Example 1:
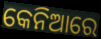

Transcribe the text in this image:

କେନିଆରେ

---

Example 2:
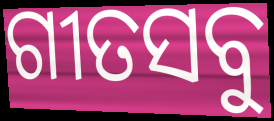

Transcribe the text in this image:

ଗୀତସବୁ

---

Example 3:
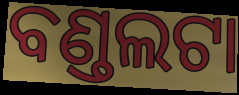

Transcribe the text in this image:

ବଣ୍ଡଲଟା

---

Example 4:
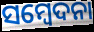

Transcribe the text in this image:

ସମ୍ବେଦନା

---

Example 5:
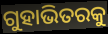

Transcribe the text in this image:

ଗୁହାଭିତରକୁ